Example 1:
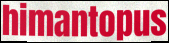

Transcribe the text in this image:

himantopus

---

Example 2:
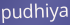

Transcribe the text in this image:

pudhiya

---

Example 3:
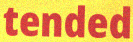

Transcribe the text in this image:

tended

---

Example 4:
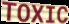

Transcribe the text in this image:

TOXIC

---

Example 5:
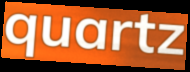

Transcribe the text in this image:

quartz